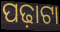
ପଢ଼ାଟା